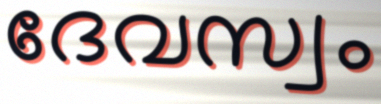
ദേവസ്വം